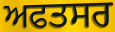
ਅਫਤਸਰ